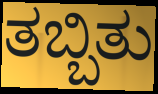
ತಬ್ಬಿತು